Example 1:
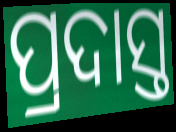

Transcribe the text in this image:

ପ୍ରଦାସ୍ତ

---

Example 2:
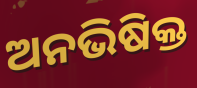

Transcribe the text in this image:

ଅନଭିଷିକ୍ତ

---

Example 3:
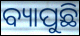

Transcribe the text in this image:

ବ୍ୟାପୁଛି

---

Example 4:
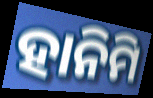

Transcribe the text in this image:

ହାନିମି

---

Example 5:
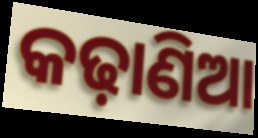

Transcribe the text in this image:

କଢ଼ାଣିଆ